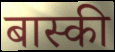
बास्की